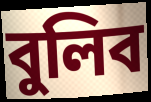
বুলিব